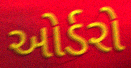
ઓર્ડરો